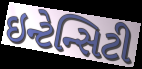
ઇન્ટેન્સિટી